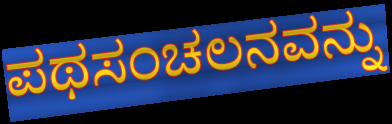
ಪಥಸಂಚಲನವನ್ನು